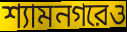
শ্যামনগরেও